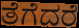
ತೆಗೆದರೆ